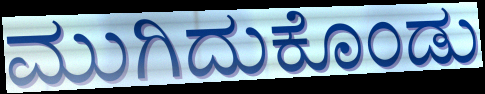
ಮುಗಿದುಕೊಂಡು